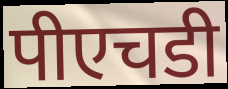
पीएचडी